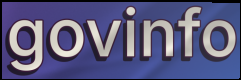
govinfo